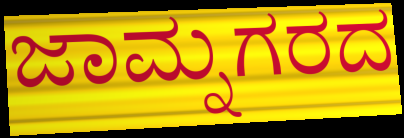
ಜಾಮ್ನಗರದ